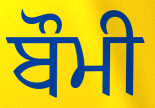
ਬੌਮੀ